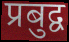
प्रबुद्व